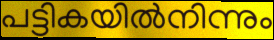
പട്ടികയിൽനിന്നും